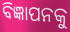
ବିଜ୍ଞାପନକୁ